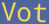
Vot